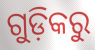
ଗୁଡ଼ିକରୁ